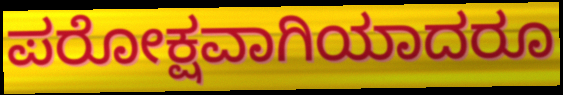
ಪರೋಕ್ಷವಾಗಿಯಾದರೂ